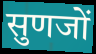
सुणजों